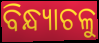
ବିନ୍ଧ୍ୟାଚଳୁ